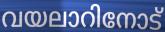
വയലാറിനോട്